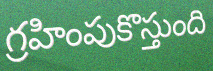
గ్రహింపుకొస్తుంది